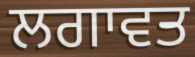
ਲਗਾਵਤ